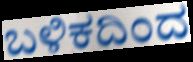
ಬಳಿಕದಿಂದ